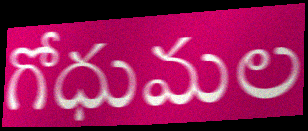
గోధుమల